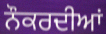
ਨੌਕਰਦੀਆਂ